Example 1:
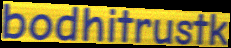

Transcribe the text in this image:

bodhitrustk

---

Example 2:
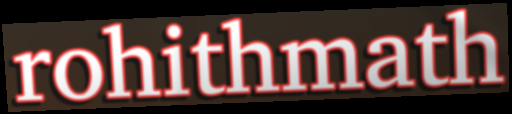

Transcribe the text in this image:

rohithmath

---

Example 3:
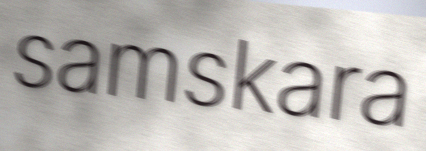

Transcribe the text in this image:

samskara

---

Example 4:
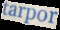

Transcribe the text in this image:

tarpor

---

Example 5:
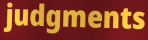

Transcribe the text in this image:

judgments